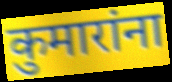
कुमारांना